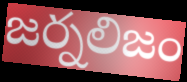
జర్నలిజం